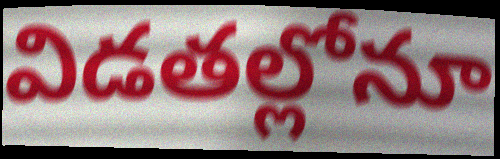
విడతల్లోనూ